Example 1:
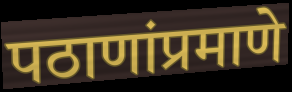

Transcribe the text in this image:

पठाणांप्रमाणे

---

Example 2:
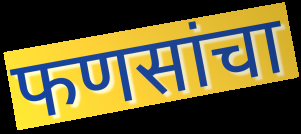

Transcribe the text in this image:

फणसांचा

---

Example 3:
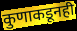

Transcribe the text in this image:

कुणाकडूनही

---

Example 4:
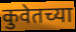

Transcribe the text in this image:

कुवेतच्या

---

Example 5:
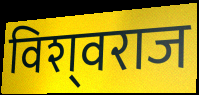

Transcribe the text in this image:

विश्वराज